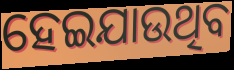
ହେଇଯାଉଥିବ